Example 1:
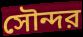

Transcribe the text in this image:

সৌন্দর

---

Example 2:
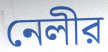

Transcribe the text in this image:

নেলীর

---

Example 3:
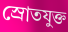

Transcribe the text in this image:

স্রোতযুক্ত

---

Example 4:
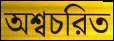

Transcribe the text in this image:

অশ্বচরিত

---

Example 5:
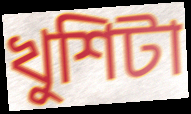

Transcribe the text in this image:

খুশিটা